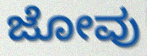
ಜೋವು